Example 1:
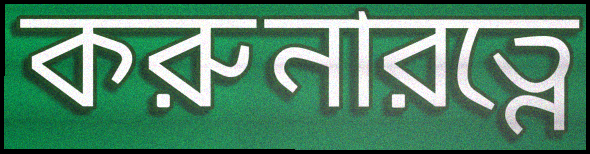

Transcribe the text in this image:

করুনারত্নে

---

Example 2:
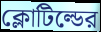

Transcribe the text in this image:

ক্লোটিল্ডের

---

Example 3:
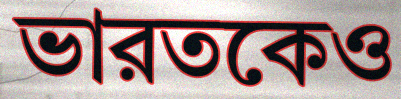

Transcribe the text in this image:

ভারতকেও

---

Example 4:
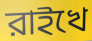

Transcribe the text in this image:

রাইখে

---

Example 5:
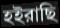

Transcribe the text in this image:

হইরাছি